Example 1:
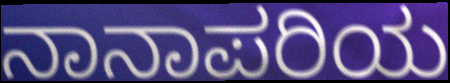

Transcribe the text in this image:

ನಾನಾಪರಿಯ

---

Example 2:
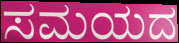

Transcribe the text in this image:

ಸಮಯದ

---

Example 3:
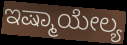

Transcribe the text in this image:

ಇಷ್ಮಾಯೇಲ್ಯ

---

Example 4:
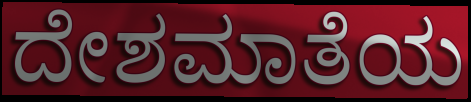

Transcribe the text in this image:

ದೇಶಮಾತೆಯ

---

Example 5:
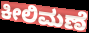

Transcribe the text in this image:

ಕೀಲಿಮಣೆ